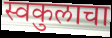
स्वकुलाचा